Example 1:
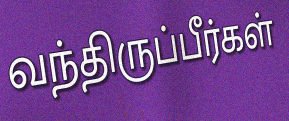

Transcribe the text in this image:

வந்திருப்பீர்கள்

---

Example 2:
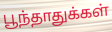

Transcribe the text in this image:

பூந்தாதுக்கள்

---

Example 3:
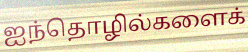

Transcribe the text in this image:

ஐந்தொழில்களைக்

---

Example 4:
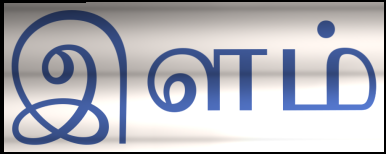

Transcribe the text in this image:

இளம்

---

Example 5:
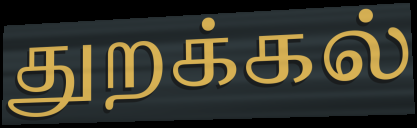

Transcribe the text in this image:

துறக்கல்